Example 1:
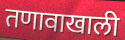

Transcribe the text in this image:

तणावाखाली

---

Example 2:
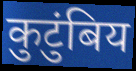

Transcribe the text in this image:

कुटुंबिय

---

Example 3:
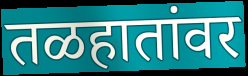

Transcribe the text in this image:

तळहातांवर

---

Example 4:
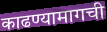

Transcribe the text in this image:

काढण्यामागची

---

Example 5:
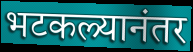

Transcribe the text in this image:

भटकल्यानंतर